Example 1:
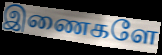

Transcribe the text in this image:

இணைகளே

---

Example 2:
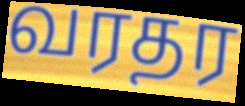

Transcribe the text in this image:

வரதர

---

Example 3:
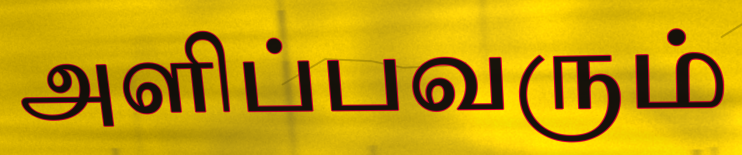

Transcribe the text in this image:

அளிப்பவரும்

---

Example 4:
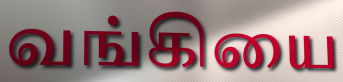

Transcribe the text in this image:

வங்கியை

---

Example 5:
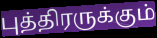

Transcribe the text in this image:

புத்திரருக்கும்